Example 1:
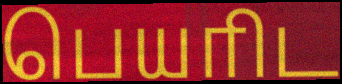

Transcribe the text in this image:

பெயரிட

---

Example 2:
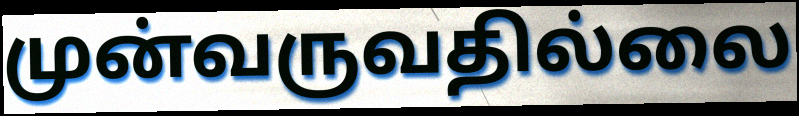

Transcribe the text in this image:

முன்வருவதில்லை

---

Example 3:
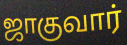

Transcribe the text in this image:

ஜாகுவார்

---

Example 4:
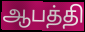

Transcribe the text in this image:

ஆபத்தி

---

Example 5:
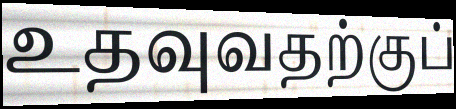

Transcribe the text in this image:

உதவுவதற்குப்